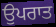
ਉਪਰਾਤ